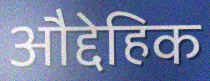
औद्देहिक